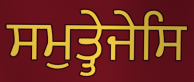
ਸਮੁਤ੍ਤੇਜੇਸਿ